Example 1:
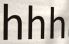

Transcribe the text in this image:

hhh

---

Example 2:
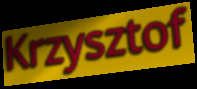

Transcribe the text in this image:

Krzysztof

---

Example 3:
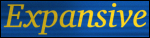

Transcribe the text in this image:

Expansive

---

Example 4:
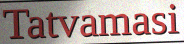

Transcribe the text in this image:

Tatvamasi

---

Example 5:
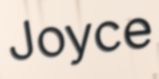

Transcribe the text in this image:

Joyce